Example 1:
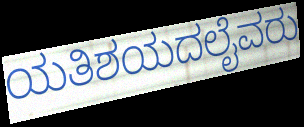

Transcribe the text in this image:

ಯತಿಶಯದಲೈವರು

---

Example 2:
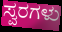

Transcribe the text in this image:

ಸ್ವರಗಳು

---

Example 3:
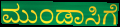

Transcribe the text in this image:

ಮುಂಡಾಸಿಗೆ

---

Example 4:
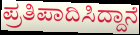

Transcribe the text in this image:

ಪ್ರತಿಪಾದಿಸಿದ್ದಾನೆ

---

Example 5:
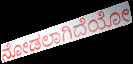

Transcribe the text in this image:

ನೋಡಲಾಗಿದೆಯೋ